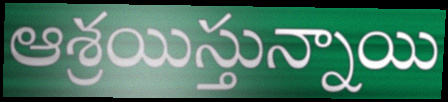
ఆశ్రయిస్తున్నాయి